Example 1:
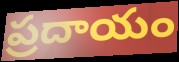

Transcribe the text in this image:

ప్రదాయం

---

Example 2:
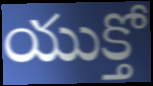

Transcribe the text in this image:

యుక్తో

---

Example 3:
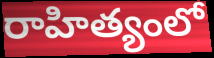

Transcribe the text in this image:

రాహిత్యంలో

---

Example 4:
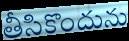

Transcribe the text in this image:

తీసికొందును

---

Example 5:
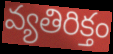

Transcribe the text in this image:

వ్యతిరిక్తం